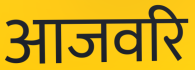
आजवरि